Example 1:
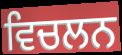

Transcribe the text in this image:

ਵਿਚਲਨ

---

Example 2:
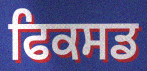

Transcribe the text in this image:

ਫਿਕਸਡ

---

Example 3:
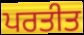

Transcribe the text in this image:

ਪਰਤੀਤ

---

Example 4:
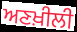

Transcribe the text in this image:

ਅਣਖ਼ੀਲੀ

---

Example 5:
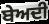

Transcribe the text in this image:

ਬੇਅਦੀ